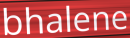
bhalene